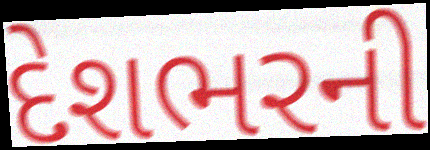
દેશભરની